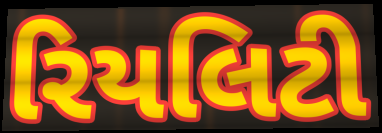
રિયલિટી